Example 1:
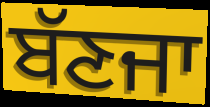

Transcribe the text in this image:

ਬੱਣਜਾ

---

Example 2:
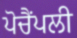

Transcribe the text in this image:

ਪੋਚੈਂਪਲੀ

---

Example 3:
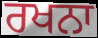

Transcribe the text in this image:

ਰਖਨਾ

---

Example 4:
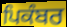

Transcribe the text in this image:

ਪਿਕੰਬਰ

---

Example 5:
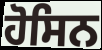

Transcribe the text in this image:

ਹੋਸਿਨ